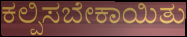
ಕಲ್ಪಿಸಬೇಕಾಯಿತು